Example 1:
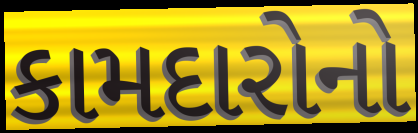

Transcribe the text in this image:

કામદારોનો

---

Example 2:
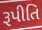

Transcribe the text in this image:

રૂપીતિ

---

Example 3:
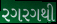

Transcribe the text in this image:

રગરગથી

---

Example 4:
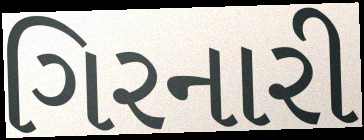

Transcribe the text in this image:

ગિરનારી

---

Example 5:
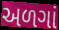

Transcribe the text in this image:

અળગાં